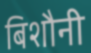
बिशौनी